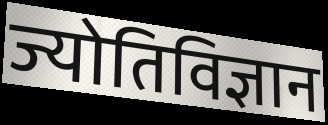
ज्योतिविज्ञान